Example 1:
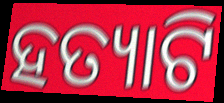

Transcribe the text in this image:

ହତ୍ୟାଟି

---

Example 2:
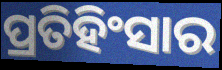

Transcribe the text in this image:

ପ୍ରତିହିଂସାର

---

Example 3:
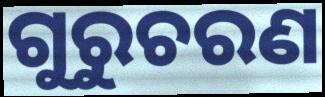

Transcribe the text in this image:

ଗୁରୁଚରଣ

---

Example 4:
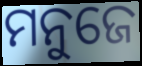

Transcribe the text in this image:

ମନୁଜେ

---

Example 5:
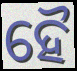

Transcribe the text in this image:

ହୈ